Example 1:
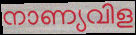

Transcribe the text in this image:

നാണ്യവിള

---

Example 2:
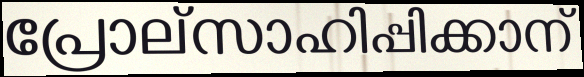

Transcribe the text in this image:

പ്രോല്സാഹിപ്പിക്കാന്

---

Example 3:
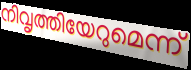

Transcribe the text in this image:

നിവൃത്തിയേറുമെന്ന്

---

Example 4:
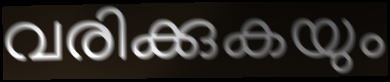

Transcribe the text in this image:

വരിക്കുകയും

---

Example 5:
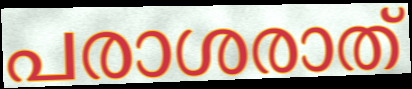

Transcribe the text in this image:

പരാശരാത്